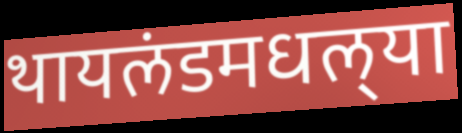
थायलंडमधल्या